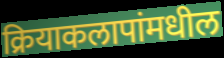
क्रियाकलापांमधील